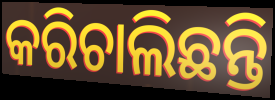
କରିଚାଲିଛନ୍ତି